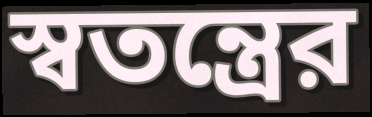
স্বতন্ত্রের